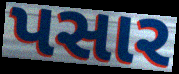
પસાર